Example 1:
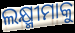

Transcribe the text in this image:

ଲକ୍ଷ୍ମୀମାକୁ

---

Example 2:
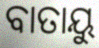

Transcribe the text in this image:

ବାତାୟୁ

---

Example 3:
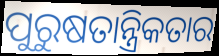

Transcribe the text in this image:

ପୁରୁଷତାନ୍ତ୍ରିକତାର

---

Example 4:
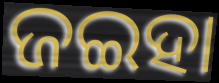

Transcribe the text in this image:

ଜଇହା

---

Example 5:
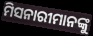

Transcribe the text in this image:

ମିସନାରୀମାନଙ୍କୁ